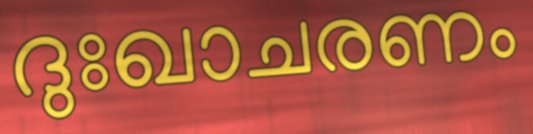
ദുഃഖാചരണം